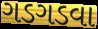
ગડગડવા